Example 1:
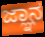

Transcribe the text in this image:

ಜ್ಞಾನ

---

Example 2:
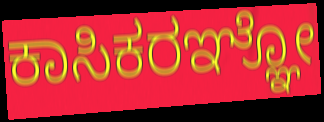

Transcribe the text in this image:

ಕಾಸಿಕರಞ್ಞೋ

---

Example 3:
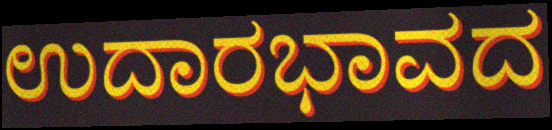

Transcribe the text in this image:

ಉದಾರಭಾವದ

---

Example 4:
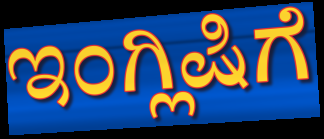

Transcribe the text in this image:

ಇಂಗ್ಲಿಷಿಗೆ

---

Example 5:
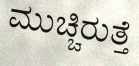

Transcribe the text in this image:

ಮುಚ್ಚಿರುತ್ತೆ